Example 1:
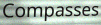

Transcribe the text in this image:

Compasses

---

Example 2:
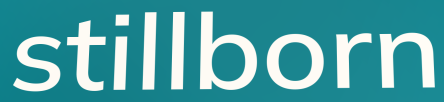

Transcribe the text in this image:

stillborn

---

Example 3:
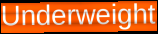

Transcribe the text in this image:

Underweight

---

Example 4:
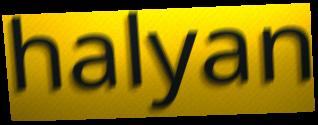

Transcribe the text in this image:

halyan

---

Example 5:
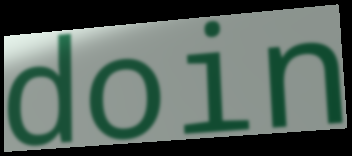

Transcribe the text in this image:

doin